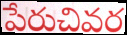
పేరుచివర